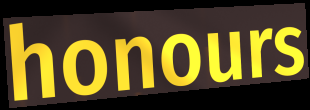
honours